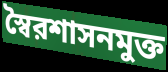
স্বৈরশাসনমুক্ত